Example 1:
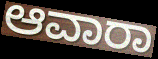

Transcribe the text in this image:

ಆವಾರಾ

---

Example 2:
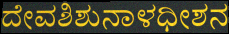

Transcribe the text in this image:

ದೇವಶಿಶುನಾಳಧೀಶನ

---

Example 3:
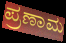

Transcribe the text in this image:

ಪ್ರಣಾಮ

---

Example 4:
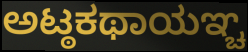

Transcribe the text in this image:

ಅಟ್ಠಕಥಾಯಞ್ಚ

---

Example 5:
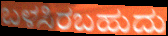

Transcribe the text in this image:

ಬಳಸಿರಬಹುದು